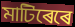
মাটিৰেৰে